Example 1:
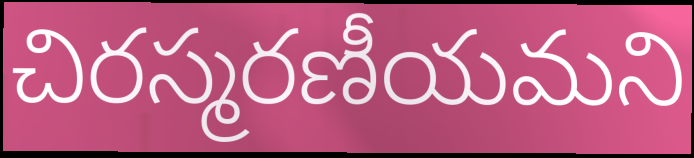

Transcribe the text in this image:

చిరస్మరణీయమని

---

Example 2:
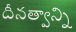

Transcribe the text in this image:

దీనత్వాన్ని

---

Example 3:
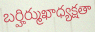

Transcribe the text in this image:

బర్హిర్ముఖాధ్యక్షతా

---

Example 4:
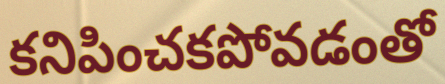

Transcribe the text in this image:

కనిపించకపోవడంతో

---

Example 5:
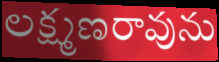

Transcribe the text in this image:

లక్ష్మణరావును